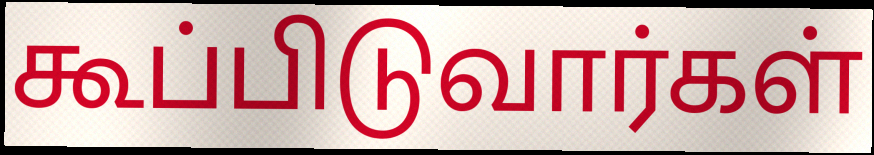
கூப்பிடுவார்கள்